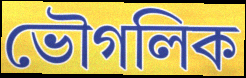
ভৌগলিক